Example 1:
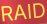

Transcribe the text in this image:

RAID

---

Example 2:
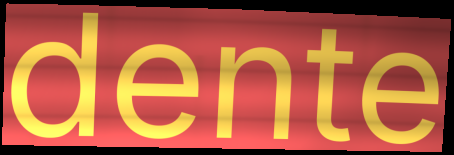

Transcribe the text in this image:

dente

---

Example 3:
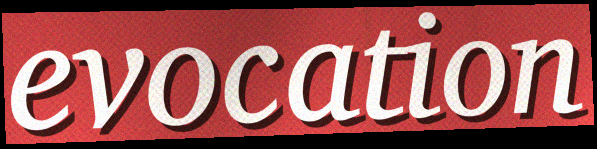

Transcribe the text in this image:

evocation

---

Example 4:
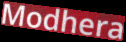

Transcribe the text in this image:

Modhera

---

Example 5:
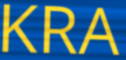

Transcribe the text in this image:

KRA